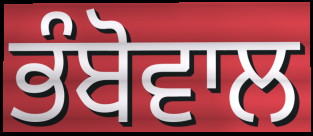
ਭੰਬੋਵਾਲ